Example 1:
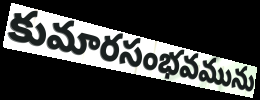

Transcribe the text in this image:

కుమారసంభవమును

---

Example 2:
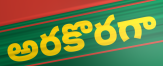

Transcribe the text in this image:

అరకొరగా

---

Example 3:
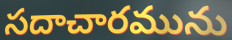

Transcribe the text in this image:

సదాచారమును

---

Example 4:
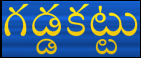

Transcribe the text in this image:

గడ్డకట్టు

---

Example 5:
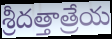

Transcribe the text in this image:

శ్రీదత్తాత్రేయ